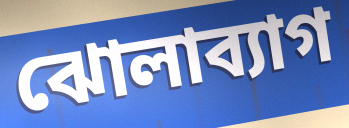
ঝোলাব্যাগ